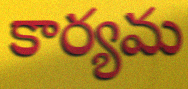
కార్యమ